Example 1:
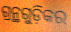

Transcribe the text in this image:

ଗ୍ରନ୍ଥଗୁଡ଼ିକର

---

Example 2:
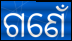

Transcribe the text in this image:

ଗଣେଁ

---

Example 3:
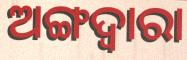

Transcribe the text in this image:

ଅଙ୍ଗଦ୍ଵାରା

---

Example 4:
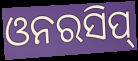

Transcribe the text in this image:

ଓନରସିପ୍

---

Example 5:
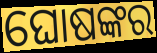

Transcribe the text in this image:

ଘୋଷଙ୍କର